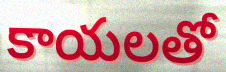
కాయలతో